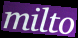
milto